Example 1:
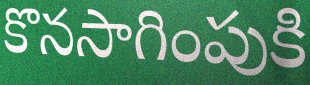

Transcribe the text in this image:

కొనసాగింపుకి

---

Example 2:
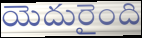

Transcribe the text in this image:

యెదురైంది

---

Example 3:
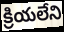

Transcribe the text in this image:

క్రియలేని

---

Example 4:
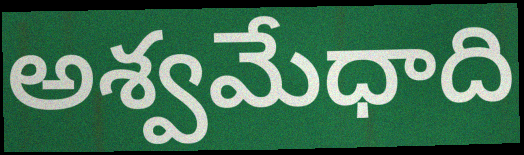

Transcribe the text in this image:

అశ్వమేధాది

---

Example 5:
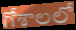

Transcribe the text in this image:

గోశాలలో